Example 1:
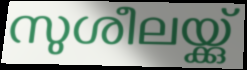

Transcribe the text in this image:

സുശീലയ്ക്കു്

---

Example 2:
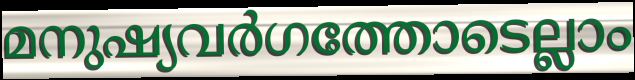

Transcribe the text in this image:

മനുഷ്യവർഗത്തോടെല്ലാം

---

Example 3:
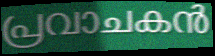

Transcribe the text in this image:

പ്രവാചകൻ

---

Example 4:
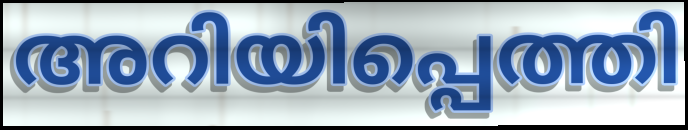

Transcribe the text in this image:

അറിയിപ്പെത്തി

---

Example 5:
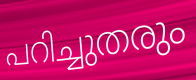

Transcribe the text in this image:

പറിച്ചുതരും